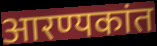
आरण्यकांत